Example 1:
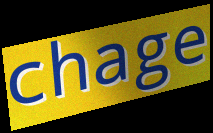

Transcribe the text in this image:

chage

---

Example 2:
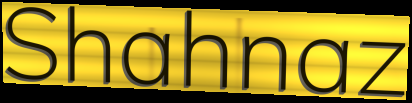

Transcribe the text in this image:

Shahnaz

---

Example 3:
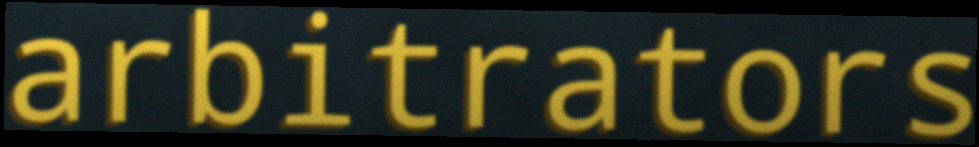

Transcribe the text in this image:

arbitrators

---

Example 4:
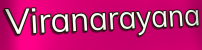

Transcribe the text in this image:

Viranarayana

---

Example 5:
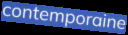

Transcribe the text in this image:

contemporaine